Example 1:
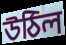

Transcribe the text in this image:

উঠিল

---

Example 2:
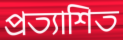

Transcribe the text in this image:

প্ৰত্যাশিত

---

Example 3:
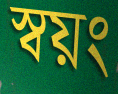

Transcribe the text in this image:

স্বয়ং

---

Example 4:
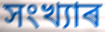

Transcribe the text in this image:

সংখ্যাৰ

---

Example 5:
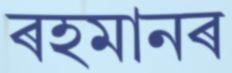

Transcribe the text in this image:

ৰহমানৰ